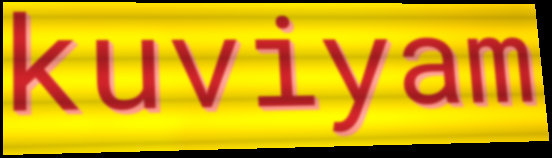
kuviyam